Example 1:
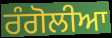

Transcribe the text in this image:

ਰੰਗੋਲੀਆ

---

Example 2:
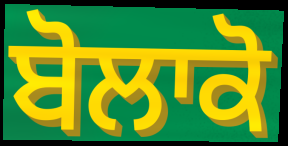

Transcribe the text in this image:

ਬੋਲਾਕੋ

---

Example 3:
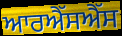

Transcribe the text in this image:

ਆਰਐੱਸਐੱਸ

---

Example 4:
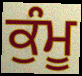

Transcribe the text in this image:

ਕੁੰਮੂ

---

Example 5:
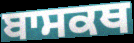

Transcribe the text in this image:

ਬਾਸਕਥ